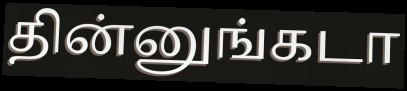
தின்னுங்கடா